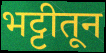
भट्टीतून